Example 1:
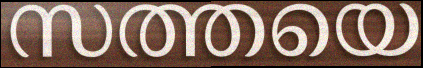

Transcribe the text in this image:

സത്തയെ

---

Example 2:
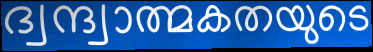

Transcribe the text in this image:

ദ്വന്ദ്വാത്മകതയുടെ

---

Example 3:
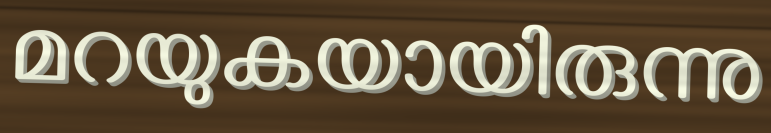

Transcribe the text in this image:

മറയുകയായിരുന്നു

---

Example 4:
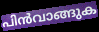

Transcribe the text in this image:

പിൻവാങ്ങുക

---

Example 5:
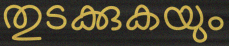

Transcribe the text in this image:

തുടക്കുകയും